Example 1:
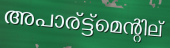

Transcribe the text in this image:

അപാര്ട്ട്മെന്റില്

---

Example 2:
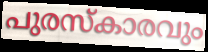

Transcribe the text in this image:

പുരസ്കാരവും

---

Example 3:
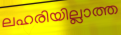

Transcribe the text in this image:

ലഹരിയില്ലാത്ത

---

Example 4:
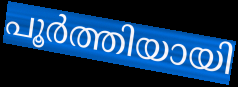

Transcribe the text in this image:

പൂർത്തിയായി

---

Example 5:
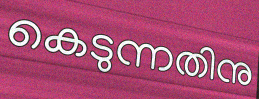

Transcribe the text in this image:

കെടുന്നതിനു